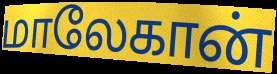
மாலேகான்